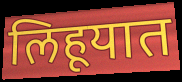
लिहूयात